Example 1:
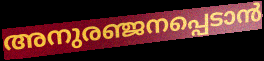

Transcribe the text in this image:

അനുരഞ്ജനപ്പെടാൻ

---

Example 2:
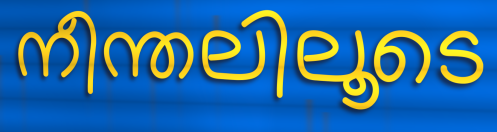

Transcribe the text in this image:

നീന്തലിലൂടെ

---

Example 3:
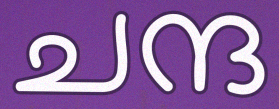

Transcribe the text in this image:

ചന്ദ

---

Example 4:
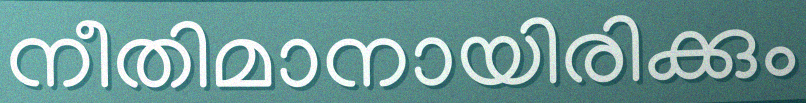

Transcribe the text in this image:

നീതിമാനായിരിക്കും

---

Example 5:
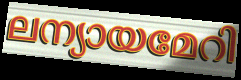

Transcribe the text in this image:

ലന്യായമേറി